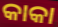
କାକା